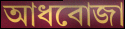
আধবোজা